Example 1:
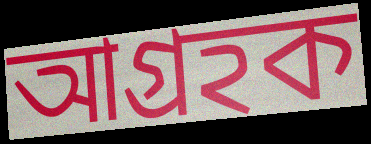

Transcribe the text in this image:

আগ্ৰহক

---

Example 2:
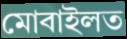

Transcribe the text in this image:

মোবাইলত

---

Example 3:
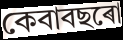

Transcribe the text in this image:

কেবাবছৰো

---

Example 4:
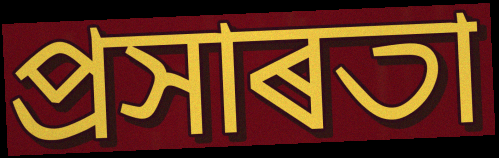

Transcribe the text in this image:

প্ৰসাৰতা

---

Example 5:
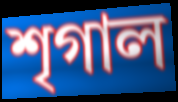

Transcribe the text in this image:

শৃগাল